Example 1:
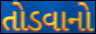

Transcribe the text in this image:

તોડવાનો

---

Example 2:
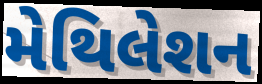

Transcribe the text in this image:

મેથિલેશન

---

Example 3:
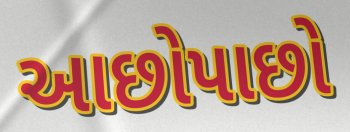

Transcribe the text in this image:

આછોપાછો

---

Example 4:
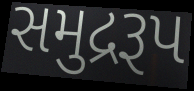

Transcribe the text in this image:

સમુદ્રરૂપ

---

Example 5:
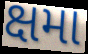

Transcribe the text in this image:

ક્ષમા